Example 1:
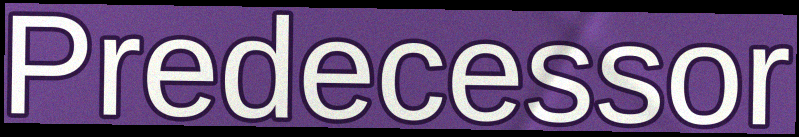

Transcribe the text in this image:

Predecessor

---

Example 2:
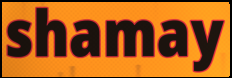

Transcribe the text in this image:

shamay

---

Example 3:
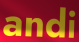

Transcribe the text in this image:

andi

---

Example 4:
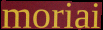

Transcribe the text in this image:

moriai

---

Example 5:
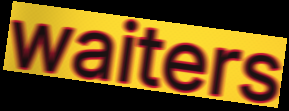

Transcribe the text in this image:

waiters